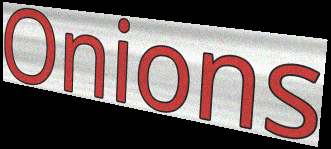
Onions